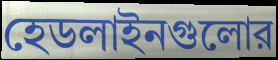
হেডলাইনগুলোর